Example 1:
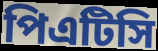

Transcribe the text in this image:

পিএটিসি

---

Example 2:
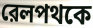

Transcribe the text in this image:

রেলপথকে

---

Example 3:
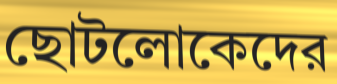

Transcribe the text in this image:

ছোটলোকেদের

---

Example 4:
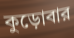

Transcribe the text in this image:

কুড়োবার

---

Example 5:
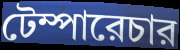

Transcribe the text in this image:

টেম্পারেচার